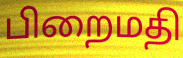
பிறைமதி